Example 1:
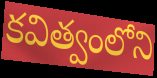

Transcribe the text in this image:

కవిత్వంలోని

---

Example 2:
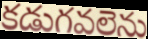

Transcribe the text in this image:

కడుగవలెను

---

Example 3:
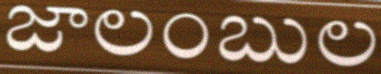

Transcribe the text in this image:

జాలంబుల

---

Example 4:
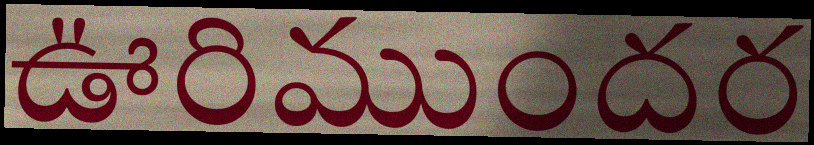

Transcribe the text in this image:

ఊరిముందర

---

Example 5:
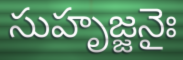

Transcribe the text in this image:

సుహృజ్జనైః